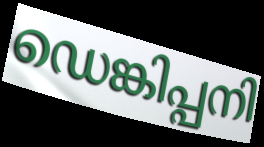
ഡെങ്കിപ്പനി